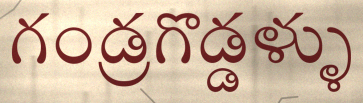
గండ్రగొడ్డళ్ళు